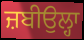
ਜ਼ਬੀਉਲ੍ਹਾ